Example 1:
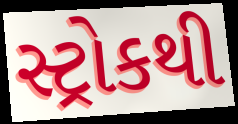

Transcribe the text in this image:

સ્ટ્રોકથી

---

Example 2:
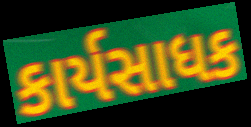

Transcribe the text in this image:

કાર્યસાધક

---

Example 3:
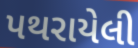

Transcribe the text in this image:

પથરાયેલી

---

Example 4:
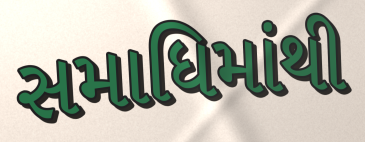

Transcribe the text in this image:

સમાધિમાંથી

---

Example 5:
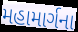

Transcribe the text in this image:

મહામાર્ગના